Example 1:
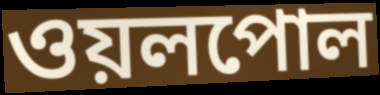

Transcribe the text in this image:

ওয়লপোল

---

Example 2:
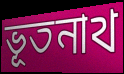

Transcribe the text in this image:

ভূতনাথ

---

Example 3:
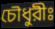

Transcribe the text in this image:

চৌধুরীঃ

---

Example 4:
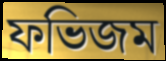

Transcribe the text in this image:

ফভিজম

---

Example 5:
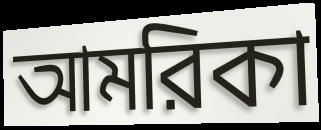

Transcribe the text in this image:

আমরিকা